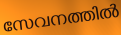
സേവനത്തിൽ